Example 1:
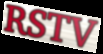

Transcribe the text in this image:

RSTV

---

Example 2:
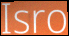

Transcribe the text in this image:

Isro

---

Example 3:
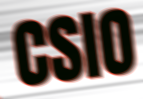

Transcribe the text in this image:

CSIO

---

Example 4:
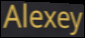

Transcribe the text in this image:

Alexey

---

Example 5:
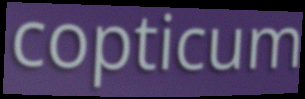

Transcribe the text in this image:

copticum